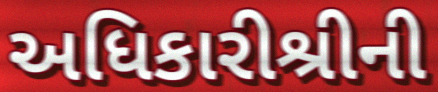
અધિકારીશ્રીની